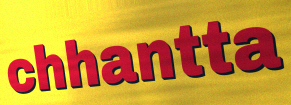
chhantta